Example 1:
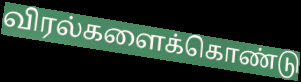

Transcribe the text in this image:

விரல்களைக்கொண்டு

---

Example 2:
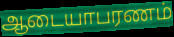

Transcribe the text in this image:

ஆடையாபரணம்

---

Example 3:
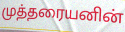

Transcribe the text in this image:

முத்தரையனின்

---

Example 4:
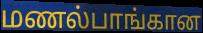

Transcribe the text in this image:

மணல்பாங்கான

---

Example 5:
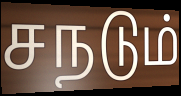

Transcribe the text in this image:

சநடும்